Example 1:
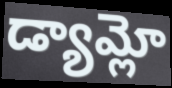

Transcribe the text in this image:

డ్యామ్లో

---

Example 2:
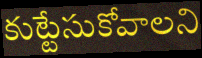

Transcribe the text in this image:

కుట్టేసుకోవాలని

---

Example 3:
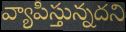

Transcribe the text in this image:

వ్యాపిస్తున్నదని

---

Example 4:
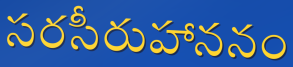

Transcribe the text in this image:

సరసీరుహాననం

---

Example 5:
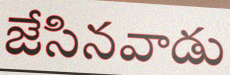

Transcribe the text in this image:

జేసినవాడు